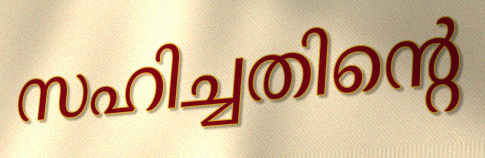
സഹിച്ചതിന്റെ